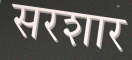
सरशार